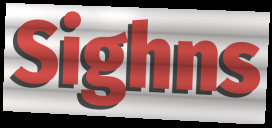
Sighns